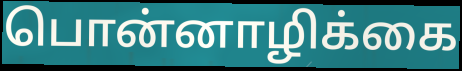
பொன்னாழிக்கை